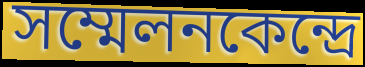
সম্মেলনকেন্দ্রে